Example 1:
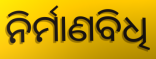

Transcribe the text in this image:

ନିର୍ମାଣବିଧି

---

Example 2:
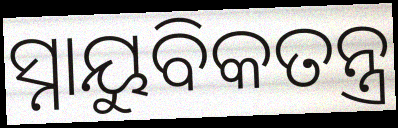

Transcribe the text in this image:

ସ୍ନାୟୁବିକତନ୍ତ୍ର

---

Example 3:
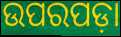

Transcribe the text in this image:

ଉପରପଡ଼ା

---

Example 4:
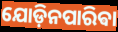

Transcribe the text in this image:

ଯୋଡ଼ିନପାରିଵା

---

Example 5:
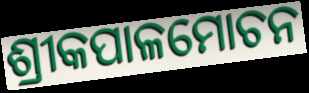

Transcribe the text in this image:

ଶ୍ରୀକପାଳମୋଚନ